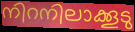
നിറനിലാക്കൂടു